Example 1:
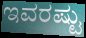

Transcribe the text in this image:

ಇವರಷ್ಟು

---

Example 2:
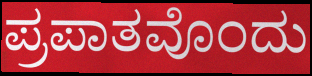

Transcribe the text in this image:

ಪ್ರಪಾತವೊಂದು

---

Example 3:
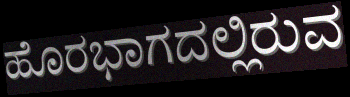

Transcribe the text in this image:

ಹೊರಭಾಗದಲ್ಲಿರುವ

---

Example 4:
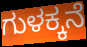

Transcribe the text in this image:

ಗುಳಕ್ಕನೆ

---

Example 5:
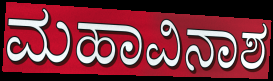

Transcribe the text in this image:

ಮಹಾವಿನಾಶ